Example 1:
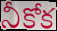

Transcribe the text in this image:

నీకోక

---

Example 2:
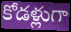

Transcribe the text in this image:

కోడళ్లుగా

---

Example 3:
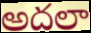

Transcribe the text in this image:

అదలా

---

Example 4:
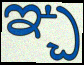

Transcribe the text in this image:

ఞ్చ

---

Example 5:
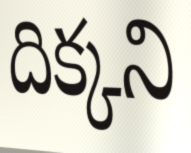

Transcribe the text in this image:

దిక్కని